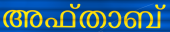
അഫ്താബ്